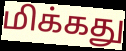
மிக்கது